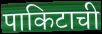
पाकिटाची